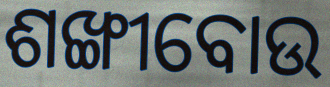
ଶଙ୍ଖୀବୋଉ